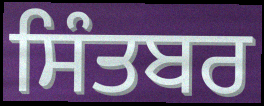
ਸਿੰਤਬਰ